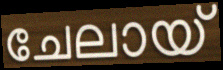
ചേലായ്